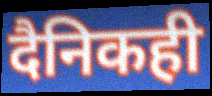
दैनिकही